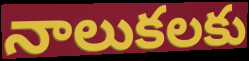
నాలుకలకు